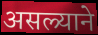
असल्याने